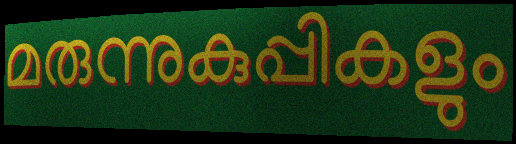
മരുന്നുകുപ്പികളും